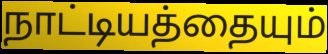
நாட்டியத்தையும்